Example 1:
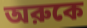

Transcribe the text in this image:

অরুকে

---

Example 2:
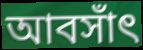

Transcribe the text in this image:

আবসাঁৎ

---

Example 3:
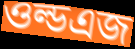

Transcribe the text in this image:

ওল্ডএজ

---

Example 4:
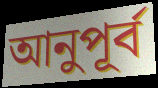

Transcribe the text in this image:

আনুপূর্ব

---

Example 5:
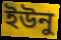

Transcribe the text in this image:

ইউনু